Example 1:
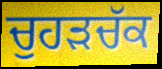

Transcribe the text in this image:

ਚੁਹੜਚੱਕ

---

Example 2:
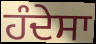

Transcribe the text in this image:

ਹੰਦੇਸਾ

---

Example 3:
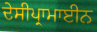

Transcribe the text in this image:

ਦੇਸੀਪ੍ਰਾਮਾਈਨ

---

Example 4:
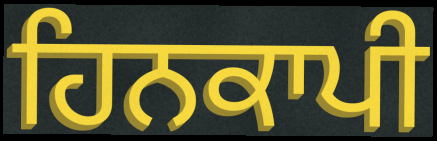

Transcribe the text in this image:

ਹਿਨਕਾਪੀ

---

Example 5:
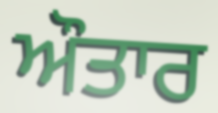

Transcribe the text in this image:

ਔਤਾਰ